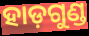
ହାଡ଼ଗୁଣ୍ଡ